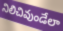
నిలిచివుండేలా